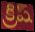
క్రిష్